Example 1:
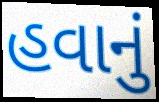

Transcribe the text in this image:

હવાનું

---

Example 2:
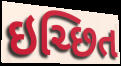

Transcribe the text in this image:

ઇચ્છિત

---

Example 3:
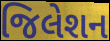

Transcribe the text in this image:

જિલેશન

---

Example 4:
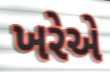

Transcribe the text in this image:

ખરેએ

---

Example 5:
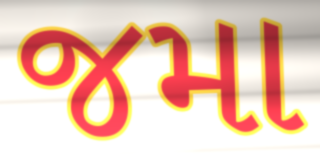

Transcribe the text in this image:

જમા